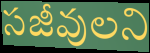
సజీవులని